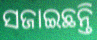
ସଜାଇଛନ୍ତି